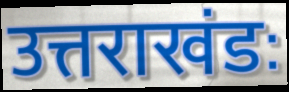
उत्तराखंडः